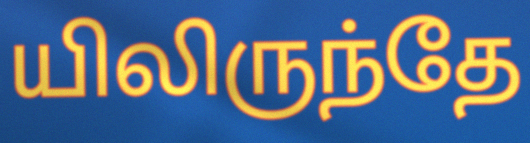
யிலிருந்தே